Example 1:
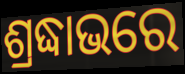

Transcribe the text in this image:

ଶ୍ରଦ୍ଧାଭରେ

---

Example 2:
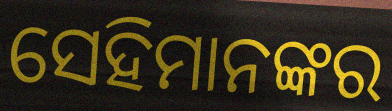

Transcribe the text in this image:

ସେହିମାନଙ୍କର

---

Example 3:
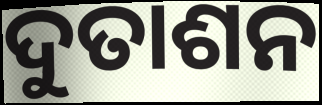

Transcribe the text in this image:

ଦୁତାଶନ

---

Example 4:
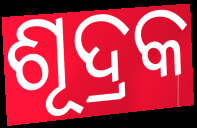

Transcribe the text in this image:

ଶୂଦ୍ରକ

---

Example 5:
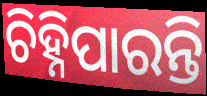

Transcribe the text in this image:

ଚିହ୍ନିପାରନ୍ତି